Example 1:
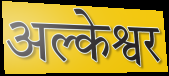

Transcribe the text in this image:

अल्केश्वर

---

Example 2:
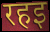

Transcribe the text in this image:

रहइ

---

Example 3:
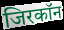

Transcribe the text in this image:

जिरकॉन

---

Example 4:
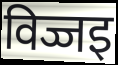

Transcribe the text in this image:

विज्जइ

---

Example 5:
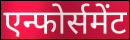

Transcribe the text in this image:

एन्फोर्समेंट